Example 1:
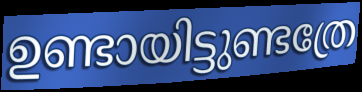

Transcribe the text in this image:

ഉണ്ടായിട്ടുണ്ടത്രേ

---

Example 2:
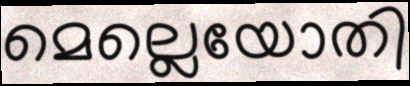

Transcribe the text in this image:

മെല്ലെയോതി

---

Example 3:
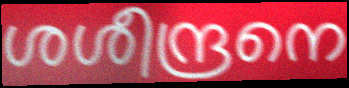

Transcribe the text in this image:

ശശീന്ദ്രനെ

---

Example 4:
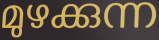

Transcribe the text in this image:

മുഴക്കുന്ന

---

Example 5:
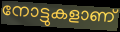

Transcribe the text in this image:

നോട്ടുകളാണ്